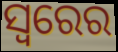
ସ୍ୱରେର